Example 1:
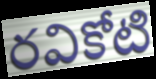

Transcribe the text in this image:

రవికోటి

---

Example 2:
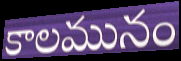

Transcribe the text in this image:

కాలమునం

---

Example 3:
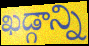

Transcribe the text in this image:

ఖడ్గాన్ని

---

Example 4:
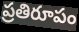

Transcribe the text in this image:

ప్రతిరూపం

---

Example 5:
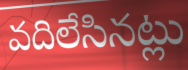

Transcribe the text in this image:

వదిలేసినట్లు